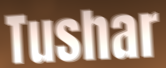
Tushar